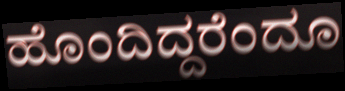
ಹೊಂದಿದ್ದರೆಂದೂ